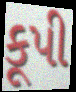
કૂપી